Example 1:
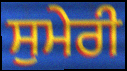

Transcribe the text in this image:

ਸੁਮੇਰੀ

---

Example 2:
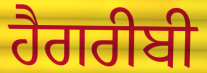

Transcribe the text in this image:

ਹੈਗਰੀਬੀ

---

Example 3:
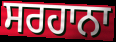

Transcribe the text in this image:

ਸਰਹਾਨਾ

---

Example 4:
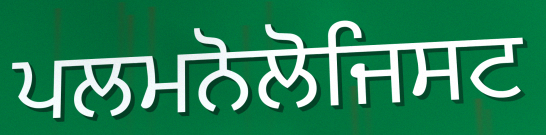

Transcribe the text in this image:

ਪਲਮਨੋਲੋਜਿਸਟ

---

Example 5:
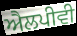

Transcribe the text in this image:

ਐਲਪੀਵੀ